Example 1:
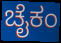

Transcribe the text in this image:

ಚೈಕಂ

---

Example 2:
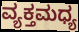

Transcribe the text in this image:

ವ್ಯಕ್ತಮಧ್ಯ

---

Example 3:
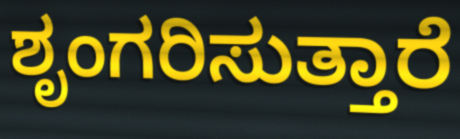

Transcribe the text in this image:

ಶೃಂಗರಿಸುತ್ತಾರೆ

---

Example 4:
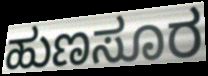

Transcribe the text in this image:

ಹುಣಸೂರ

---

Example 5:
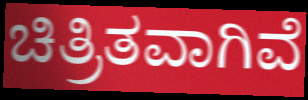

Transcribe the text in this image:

ಚಿತ್ರಿತವಾಗಿವೆ